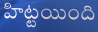
హిట్టయింది